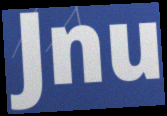
Jnu